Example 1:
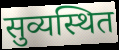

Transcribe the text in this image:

सुव्यस्थित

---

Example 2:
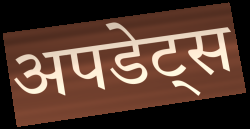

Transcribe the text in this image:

अपडेट्स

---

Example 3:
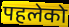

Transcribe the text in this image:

पहलेको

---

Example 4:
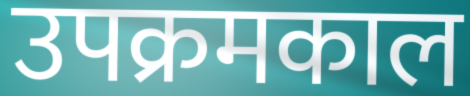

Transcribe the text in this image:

उपक्रमकाल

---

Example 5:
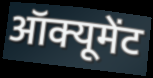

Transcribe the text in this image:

ऑक्यूमेंट